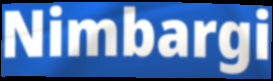
Nimbargi